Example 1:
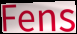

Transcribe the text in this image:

Fens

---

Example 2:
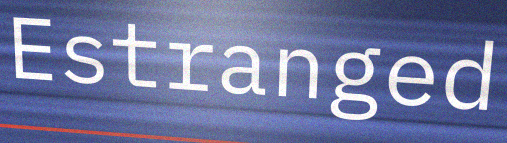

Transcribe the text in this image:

Estranged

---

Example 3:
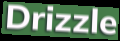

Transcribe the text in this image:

Drizzle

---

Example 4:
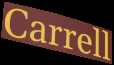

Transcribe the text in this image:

Carrell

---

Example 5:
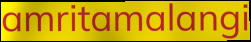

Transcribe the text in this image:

amritamalangi